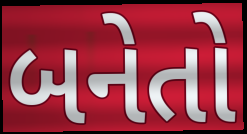
બનેતો